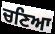
ਚਣਿਆ